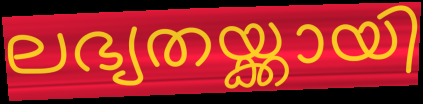
ലഭ്യതയ്ക്കായി